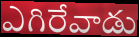
ఎగిరేవాడు